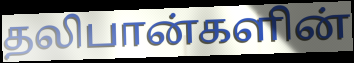
தலிபான்களின்